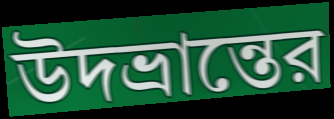
উদভ্রান্তের